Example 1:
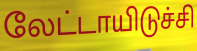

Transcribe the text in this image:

லேட்டாயிடுச்சி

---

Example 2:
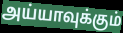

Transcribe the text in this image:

அய்யாவுக்கும்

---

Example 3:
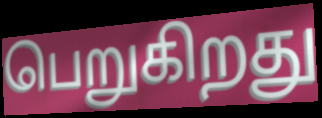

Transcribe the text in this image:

பெறுகிறது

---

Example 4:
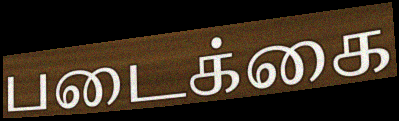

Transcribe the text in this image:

படைக்கை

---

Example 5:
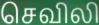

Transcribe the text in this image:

செவிலி